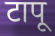
टापू